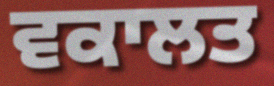
ਵਕਾਲਤ